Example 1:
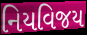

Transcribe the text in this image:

નિયવિજય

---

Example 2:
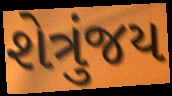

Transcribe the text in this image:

શેત્રુંજય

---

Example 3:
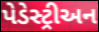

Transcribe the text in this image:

પેડેસ્ટ્રીઅન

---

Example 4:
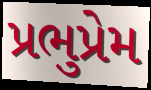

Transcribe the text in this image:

પ્રભુપ્રેમ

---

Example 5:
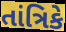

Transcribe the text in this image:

તાંત્રિકે